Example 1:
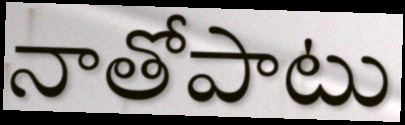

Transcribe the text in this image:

నాతోపాటు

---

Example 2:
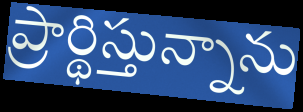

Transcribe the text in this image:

ప్రార్థిస్తున్నాను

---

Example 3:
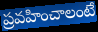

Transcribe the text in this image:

ప్రవహించాలంటే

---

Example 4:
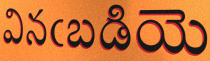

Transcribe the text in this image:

వినఁబడియె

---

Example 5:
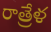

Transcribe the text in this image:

రాత్రేళ